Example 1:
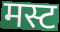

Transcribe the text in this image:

मस्ट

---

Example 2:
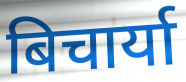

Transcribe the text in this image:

बिचार्या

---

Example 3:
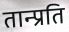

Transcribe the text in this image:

तान्प्रति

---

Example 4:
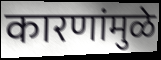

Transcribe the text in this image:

कारणांमुळे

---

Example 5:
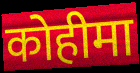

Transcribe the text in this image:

कोहीमा